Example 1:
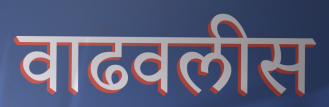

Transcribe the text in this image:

वाढवलीस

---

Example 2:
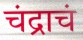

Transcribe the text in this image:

चंद्राचं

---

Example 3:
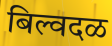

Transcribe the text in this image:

बिल्वदळ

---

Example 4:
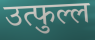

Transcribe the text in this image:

उत्फुल्ल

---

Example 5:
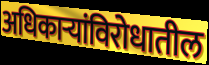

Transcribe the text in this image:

अधिकाऱ्यांविरोधातील